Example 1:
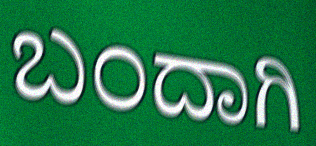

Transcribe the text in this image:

ಬಂದಾಗಿ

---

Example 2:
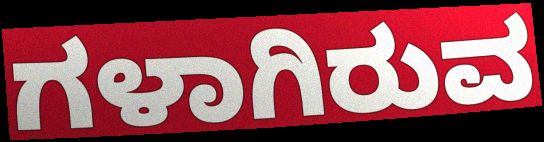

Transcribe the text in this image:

ಗಳಾಗಿರುವ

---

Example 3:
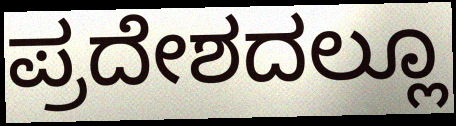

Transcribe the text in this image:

ಪ್ರದೇಶದಲ್ಲೂ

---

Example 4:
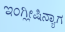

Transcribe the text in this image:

ಇಂಗ್ಲೀಷಿನ್ಯಾಗ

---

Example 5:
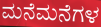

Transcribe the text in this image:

ಮನೆಮನೆಗಳ